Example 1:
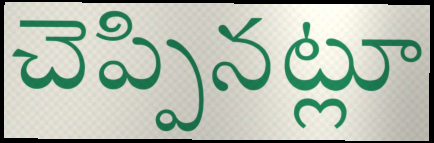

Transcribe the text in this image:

చెప్పినట్లూ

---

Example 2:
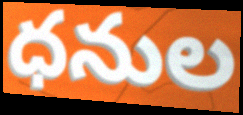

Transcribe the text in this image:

ధనుల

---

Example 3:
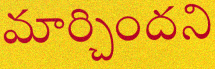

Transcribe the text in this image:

మార్చిందని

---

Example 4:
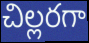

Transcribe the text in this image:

చిల్లరగా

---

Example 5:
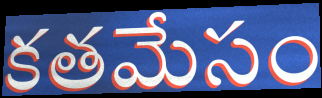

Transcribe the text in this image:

కతమేసం